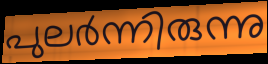
പുലർന്നിരുന്നു